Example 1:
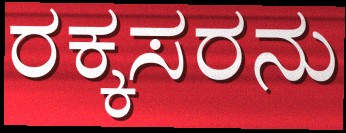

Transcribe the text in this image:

ರಕ್ಕಸರನು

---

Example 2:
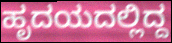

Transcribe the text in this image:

ಹೃದಯದಲ್ಲಿದ್ದ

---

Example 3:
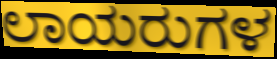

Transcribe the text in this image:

ಲಾಯರುಗಳ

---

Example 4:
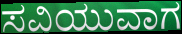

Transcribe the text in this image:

ಸವಿಯುವಾಗ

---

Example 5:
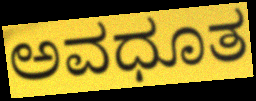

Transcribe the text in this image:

ಅವಧೂತ